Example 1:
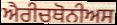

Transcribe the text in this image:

ਐਰੀਚਥੋਨੀਅਸ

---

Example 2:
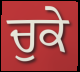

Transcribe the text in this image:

ਚੁਕੇ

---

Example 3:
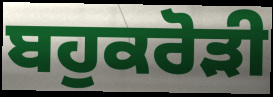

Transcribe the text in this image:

ਬਹੁਕਰੋੜੀ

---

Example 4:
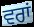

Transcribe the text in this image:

ਵਰਾਂ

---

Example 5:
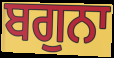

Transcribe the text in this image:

ਬਗੁਨਾ